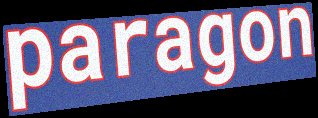
paragon